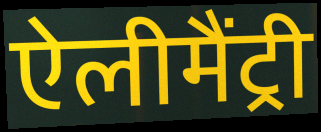
ऐलीमैंट्री